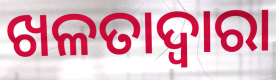
ଖଳତାଦ୍ଵାରା